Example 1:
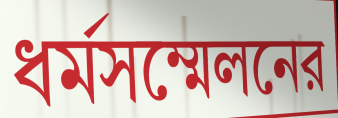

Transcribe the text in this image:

ধর্মসম্মেলনের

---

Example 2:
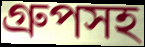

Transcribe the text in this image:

গ্রুপসহ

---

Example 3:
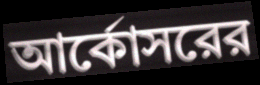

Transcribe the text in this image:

আর্কোসরের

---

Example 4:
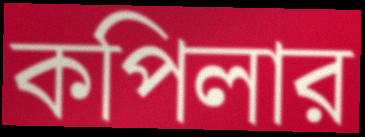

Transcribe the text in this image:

কপিলার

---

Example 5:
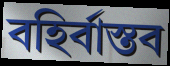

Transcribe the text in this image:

বহির্বাস্তব